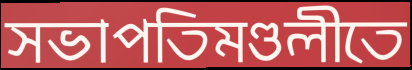
সভাপতিমণ্ডলীতে